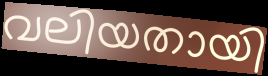
വലിയതായി